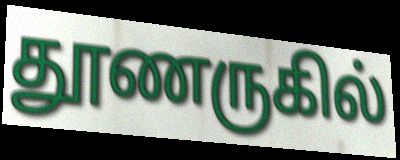
தூணருகில்